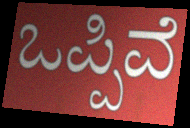
ಒಪ್ಪಿವೆ